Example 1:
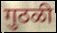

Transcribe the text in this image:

गुठळी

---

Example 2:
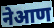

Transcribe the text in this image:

नेआण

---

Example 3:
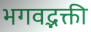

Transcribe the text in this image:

भगवद्भक्ती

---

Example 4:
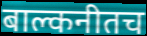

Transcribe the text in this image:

बाल्कनीतच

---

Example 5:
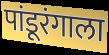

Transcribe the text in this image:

पांडूरंगाला